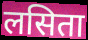
लसिता